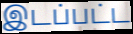
இடப்பட்ட